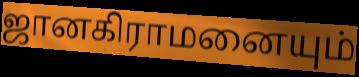
ஜானகிராமனையும்